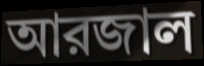
আরজাল